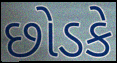
છોડકે